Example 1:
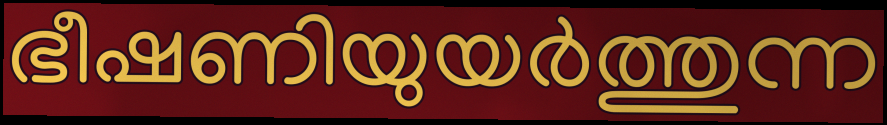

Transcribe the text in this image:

ഭീഷണിയുയർത്തുന്ന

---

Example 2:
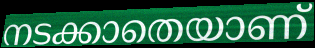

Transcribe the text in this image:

നടക്കാതെയാണ്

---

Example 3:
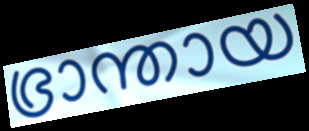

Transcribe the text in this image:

ഭ്രാന്തായ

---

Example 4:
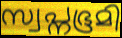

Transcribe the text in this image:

സ്വപ്നഭൂമി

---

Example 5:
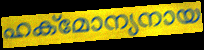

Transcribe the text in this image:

ഹക്മോന്യനായ